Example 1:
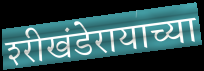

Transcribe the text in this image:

श्रीखंडेरायाच्या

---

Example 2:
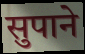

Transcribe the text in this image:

सुपाने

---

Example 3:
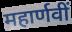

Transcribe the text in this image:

महार्णवीं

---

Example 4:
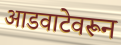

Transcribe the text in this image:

आडवाटेवरून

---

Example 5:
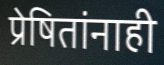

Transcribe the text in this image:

प्रेषितांनाही